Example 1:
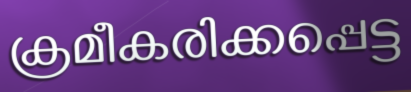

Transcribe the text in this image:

ക്രമീകരിക്കപ്പെട്ട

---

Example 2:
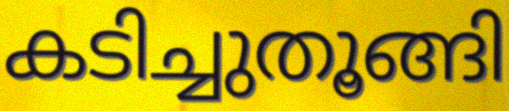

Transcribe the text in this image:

കടിച്ചുതൂങ്ങി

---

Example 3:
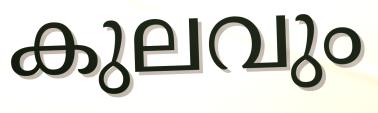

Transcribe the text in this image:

കുലവും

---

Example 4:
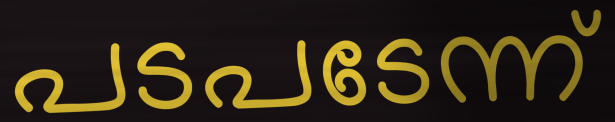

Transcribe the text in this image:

പടപടേന്ന്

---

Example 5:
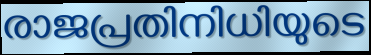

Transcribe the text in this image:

രാജപ്രതിനിധിയുടെ